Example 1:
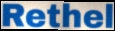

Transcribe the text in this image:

Rethel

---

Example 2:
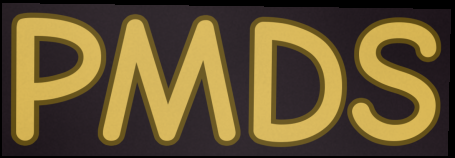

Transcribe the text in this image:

PMDS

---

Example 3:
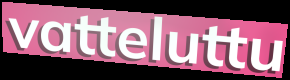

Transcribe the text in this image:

vatteluttu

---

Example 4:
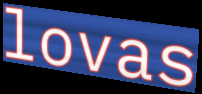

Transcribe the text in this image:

lovas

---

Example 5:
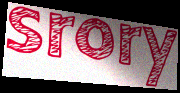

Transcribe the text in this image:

srory